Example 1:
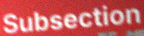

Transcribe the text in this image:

Subsection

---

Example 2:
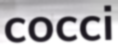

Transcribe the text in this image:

cocci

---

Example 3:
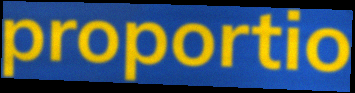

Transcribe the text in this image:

proportio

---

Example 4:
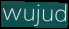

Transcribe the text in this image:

wujud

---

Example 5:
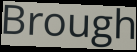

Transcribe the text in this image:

Brough